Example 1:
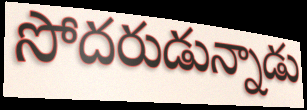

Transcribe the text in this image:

సోదరుడున్నాడు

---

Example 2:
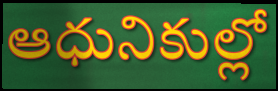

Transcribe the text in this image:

ఆధునికుల్లో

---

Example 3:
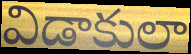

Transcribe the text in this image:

విడాకులా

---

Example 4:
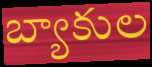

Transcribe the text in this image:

బ్యాకుల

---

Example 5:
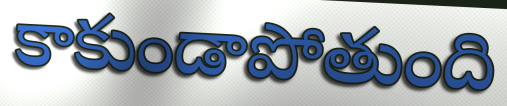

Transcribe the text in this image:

కాకుండాపోతుంది